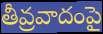
తీవ్రవాదంపై